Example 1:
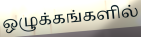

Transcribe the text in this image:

ஒழுக்கங்களில்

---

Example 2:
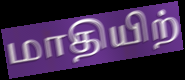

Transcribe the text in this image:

மாதியிற்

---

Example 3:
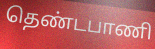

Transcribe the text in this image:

தெண்டபாணி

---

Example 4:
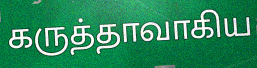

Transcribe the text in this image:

கருத்தாவாகிய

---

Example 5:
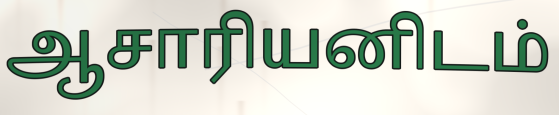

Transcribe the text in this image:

ஆசாரியனிடம்